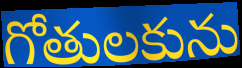
గోతులకును